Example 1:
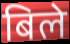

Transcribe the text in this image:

बिले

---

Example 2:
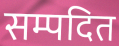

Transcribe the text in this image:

सम्पदित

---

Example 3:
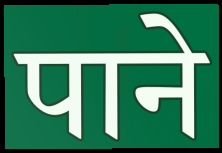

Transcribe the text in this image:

पाने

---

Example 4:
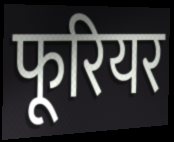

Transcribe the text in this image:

फूरियर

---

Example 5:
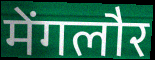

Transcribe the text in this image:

मेंगलौर